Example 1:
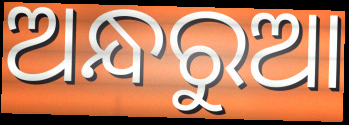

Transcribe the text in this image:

ଅନ୍ଧରୁଆ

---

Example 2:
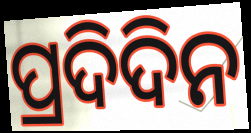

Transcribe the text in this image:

ପ୍ରଦିଦିନ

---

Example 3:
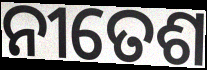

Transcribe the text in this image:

ନୀତେଶ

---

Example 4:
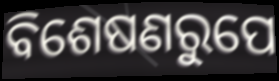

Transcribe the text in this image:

ବିଶେଷଣରୁପେ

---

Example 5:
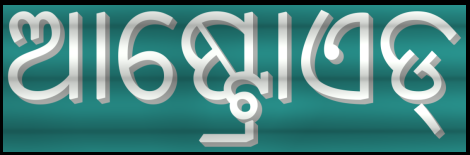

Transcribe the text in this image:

ଆଷ୍ଟ୍ରୋଏଡ୍